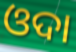
ଓଦା